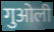
गुओली